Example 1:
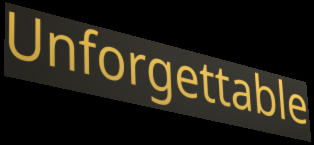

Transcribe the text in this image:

Unforgettable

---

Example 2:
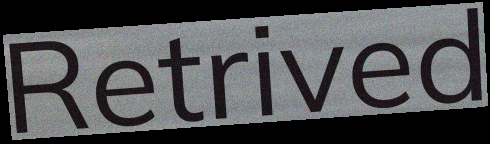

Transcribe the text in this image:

Retrived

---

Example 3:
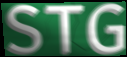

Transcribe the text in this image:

STG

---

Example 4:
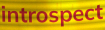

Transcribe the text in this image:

introspect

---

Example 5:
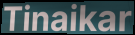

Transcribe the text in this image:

Tinaikar